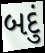
બદું